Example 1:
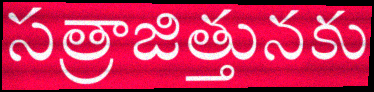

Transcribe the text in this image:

సత్రాజిత్తునకు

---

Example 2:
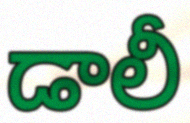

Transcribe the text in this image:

డాలీ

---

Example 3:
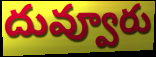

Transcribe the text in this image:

దువ్వూరు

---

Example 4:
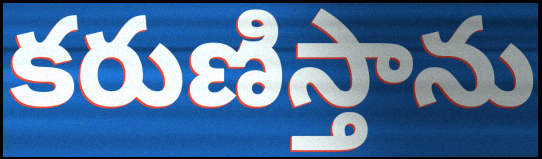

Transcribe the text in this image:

కరుణిస్తాను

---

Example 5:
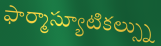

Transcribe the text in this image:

ఫార్మాస్యూటికల్స్ను